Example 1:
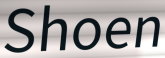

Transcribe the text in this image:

Shoen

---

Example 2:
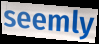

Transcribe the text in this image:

seemly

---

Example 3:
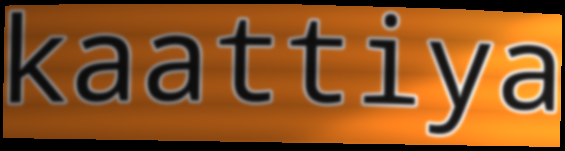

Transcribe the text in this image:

kaattiya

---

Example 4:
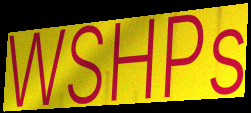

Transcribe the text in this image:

WSHPs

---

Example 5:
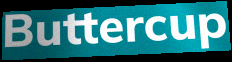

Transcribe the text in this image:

Buttercup